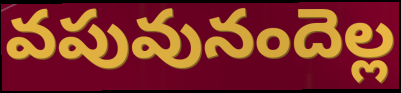
వపువునందెల్ల